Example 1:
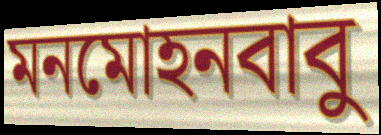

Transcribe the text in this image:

মনমোহনবাবু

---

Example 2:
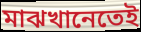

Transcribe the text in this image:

মাঝখানেতেই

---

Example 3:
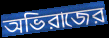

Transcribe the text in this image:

অভিরাজের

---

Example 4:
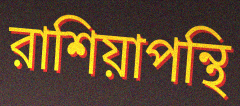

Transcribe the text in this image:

রাশিয়াপন্থি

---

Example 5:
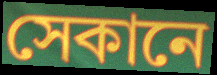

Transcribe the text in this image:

সেকানে